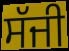
ਸੱਜੀ